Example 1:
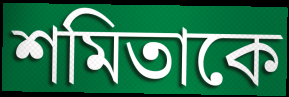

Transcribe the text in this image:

শমিতাকে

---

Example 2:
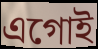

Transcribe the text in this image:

এগোই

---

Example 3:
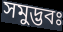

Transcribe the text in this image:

সমুদ্ভবঃ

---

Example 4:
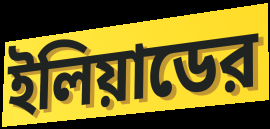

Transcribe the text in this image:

ইলিয়াডের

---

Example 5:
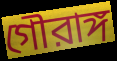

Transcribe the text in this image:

গৌরাঙ্গ